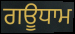
ਗਊਧਾਮ